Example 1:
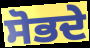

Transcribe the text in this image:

ਸੋਭਦੇ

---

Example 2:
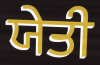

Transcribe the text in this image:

ਯੇਤੀ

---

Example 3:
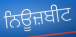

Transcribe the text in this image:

ਨਿਊਜ਼ਬੀਟ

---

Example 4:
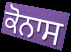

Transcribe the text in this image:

ਕੋਨਾਸ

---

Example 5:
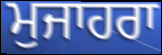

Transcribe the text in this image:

ਮੁਜਾਹਰਾ